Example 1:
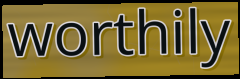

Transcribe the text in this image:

worthily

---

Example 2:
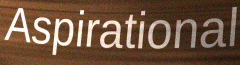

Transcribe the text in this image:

Aspirational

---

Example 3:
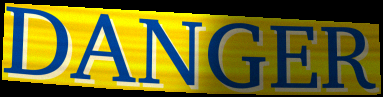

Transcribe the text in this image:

DANGER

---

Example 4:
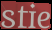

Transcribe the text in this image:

stie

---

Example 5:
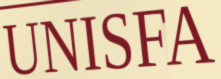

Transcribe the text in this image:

UNISFA